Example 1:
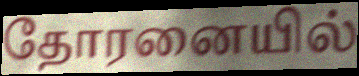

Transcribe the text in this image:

தோரனையில்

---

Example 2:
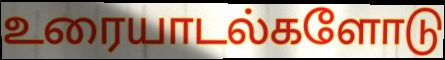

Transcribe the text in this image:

உரையாடல்களோடு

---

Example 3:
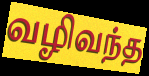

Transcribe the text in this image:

வழிவந்த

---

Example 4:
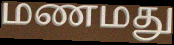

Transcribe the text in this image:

மணமது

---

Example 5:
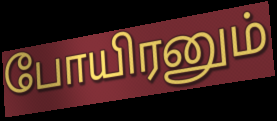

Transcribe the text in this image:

போயிரனும்